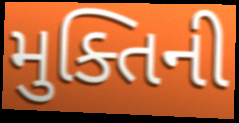
મુક્તિની